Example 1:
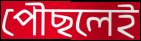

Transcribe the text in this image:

পৌছলেই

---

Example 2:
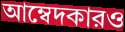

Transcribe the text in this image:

আম্বেদকারও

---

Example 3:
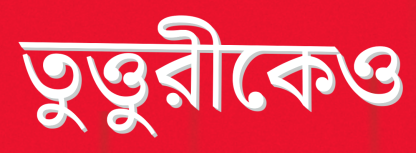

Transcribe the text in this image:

তুত্তুরীকেও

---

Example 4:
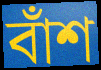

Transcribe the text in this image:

বাঁশ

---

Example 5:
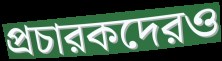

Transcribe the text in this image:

প্রচারকদেরও